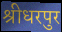
श्रीधरपुर